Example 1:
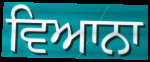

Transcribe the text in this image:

ਵਿਆਨਾ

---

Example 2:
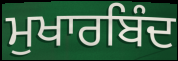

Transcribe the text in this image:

ਮੁਖਾਰਬਿੰਦ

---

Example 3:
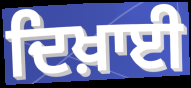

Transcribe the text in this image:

ਦਿਖ਼ਾਈ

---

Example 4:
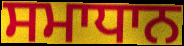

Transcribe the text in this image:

ਸਮਾਧਾਨ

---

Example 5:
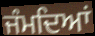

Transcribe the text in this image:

ਜੰਮਦਿਆਂ